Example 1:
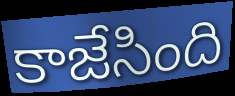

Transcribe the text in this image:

కాజేసింది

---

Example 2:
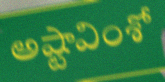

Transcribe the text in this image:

అష్టావింశో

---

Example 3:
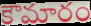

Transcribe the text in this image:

కౌమారం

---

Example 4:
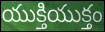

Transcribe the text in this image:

యుక్తియుక్తం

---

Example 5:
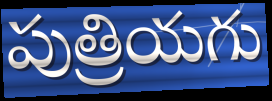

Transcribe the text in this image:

పుత్రియగు